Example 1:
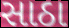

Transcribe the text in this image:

સાઠા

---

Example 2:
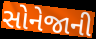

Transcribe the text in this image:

સોનેજાની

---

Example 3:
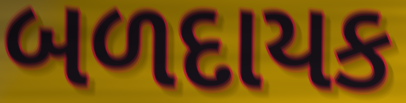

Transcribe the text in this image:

બળદાયક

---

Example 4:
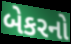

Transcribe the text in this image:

બેકરનો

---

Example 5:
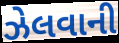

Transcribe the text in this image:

ઝેલવાની